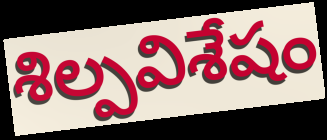
శిల్పవిశేషం